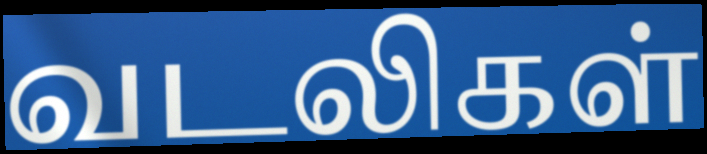
வடலிகள்